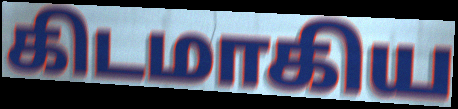
கிடமாகிய